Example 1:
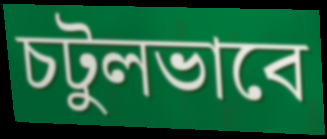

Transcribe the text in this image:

চটুলভাবে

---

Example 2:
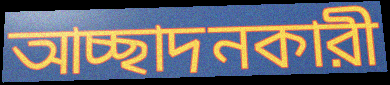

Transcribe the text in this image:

আচ্ছাদনকারী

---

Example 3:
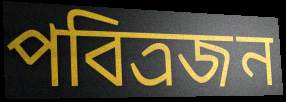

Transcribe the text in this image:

পবিত্রজন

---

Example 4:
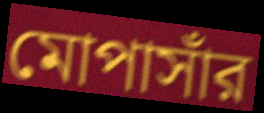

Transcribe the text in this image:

মোপাসাঁর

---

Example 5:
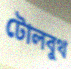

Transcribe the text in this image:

টোলবুথ